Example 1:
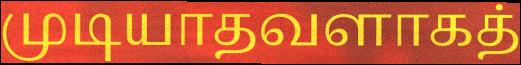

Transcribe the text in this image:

முடியாதவளாகத்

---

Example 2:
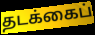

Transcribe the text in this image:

தடக்கைப்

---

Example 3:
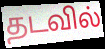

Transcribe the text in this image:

தடவில்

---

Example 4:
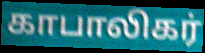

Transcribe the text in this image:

காபாலிகர்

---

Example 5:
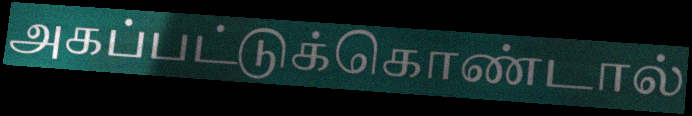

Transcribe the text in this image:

அகப்பட்டுக்கொண்டால்